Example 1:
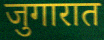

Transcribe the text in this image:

जुगारात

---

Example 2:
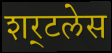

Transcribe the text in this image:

शर्टलेस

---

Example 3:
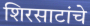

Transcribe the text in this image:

शिरसाटांचे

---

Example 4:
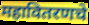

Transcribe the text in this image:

महावितरणचे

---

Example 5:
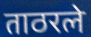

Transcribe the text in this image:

ताठरले